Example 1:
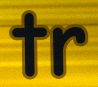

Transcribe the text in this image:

tr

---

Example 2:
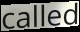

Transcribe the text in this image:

called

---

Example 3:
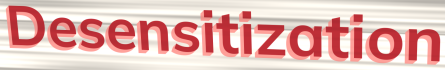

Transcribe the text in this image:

Desensitization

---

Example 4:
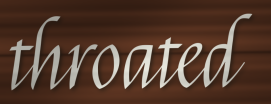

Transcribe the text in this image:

throated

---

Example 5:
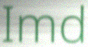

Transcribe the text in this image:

Imd